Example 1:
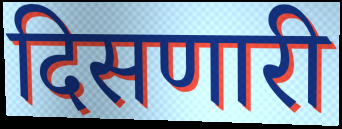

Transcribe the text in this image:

दिसणारी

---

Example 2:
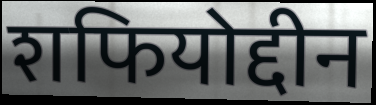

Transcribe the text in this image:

शफियोद्दीन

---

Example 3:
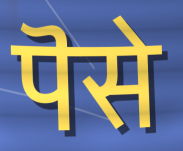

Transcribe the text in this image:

पॆसे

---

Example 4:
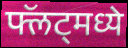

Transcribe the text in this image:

फ्लॅट्मध्ये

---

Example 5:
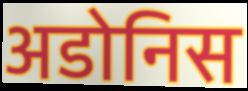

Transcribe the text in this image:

अडोनिस